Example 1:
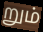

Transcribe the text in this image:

றும்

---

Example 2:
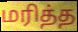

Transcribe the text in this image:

மரித்த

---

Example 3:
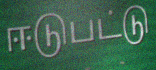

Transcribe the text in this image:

ஈடுபட்டு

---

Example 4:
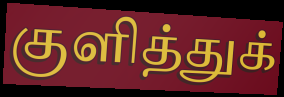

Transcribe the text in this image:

குளித்துக்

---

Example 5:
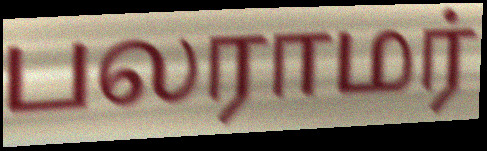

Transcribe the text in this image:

பலராமர்